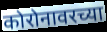
कोरोनावरच्या